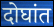
दोघांत